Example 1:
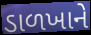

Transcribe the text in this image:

ડાળખાને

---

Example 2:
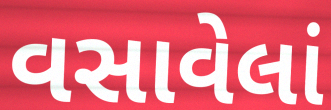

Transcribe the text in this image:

વસાવેલાં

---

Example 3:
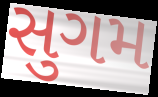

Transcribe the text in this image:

સુગમ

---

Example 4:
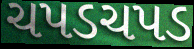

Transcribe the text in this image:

ચપડચપડ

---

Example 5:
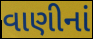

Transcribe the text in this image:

વાણીનાં